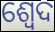
ଶ୍ଵେଦ